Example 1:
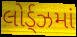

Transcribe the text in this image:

લોર્ડ્ઝમાં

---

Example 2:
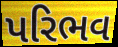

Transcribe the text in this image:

પરિભવ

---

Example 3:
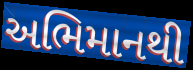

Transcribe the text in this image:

અભિમાનથી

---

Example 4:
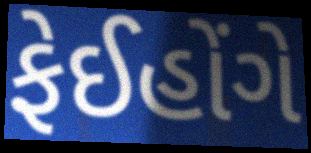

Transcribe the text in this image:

ફેઈહોંગે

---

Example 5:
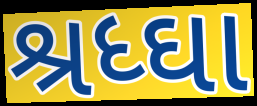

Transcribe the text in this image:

શ્રધ્ઘા